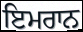
ਇਮਰਾਨ